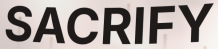
SACRIFY